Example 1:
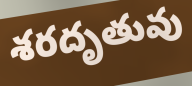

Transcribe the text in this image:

శరదృతువు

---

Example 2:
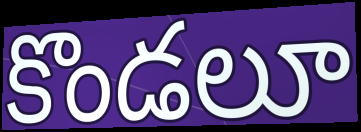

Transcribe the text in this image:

కొండలూ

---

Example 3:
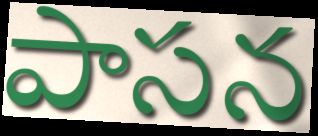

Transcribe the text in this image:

పాసన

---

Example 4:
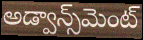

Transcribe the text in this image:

అడ్వాన్స్‌మెంట్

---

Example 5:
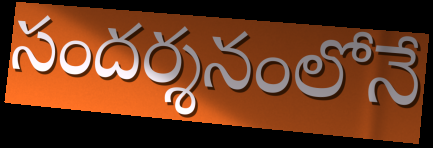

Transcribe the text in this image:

సందర్శనంలోనే